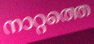
നാറ്റത്തെ